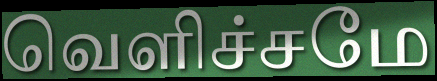
வெளிச்சமே